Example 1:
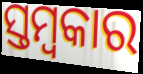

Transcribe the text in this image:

ସ୍ତମ୍ବକାର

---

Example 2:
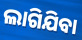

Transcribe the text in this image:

ଲାଗିଯିବା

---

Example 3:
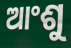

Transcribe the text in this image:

ଆଂଶୁ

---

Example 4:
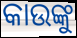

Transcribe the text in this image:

କାଉଙ୍କୁ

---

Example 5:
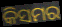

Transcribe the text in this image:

କିସମର